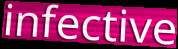
infective